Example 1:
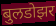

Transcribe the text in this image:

बुलडोझर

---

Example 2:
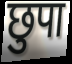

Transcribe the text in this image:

छुपा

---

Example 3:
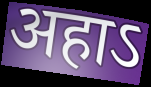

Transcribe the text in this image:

अहाऽ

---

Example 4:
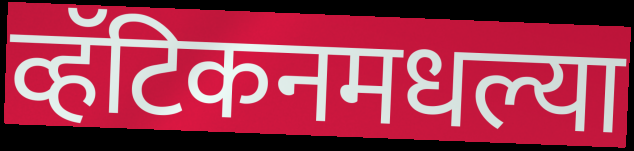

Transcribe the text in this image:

व्हॅटिकनमधल्या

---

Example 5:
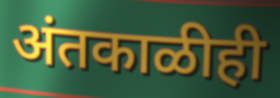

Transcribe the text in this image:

अंतकाळीही